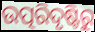
ଉତ୍ପରିଦୃଷ୍ଟିରୁ